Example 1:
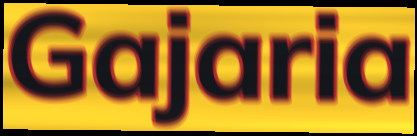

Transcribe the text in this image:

Gajaria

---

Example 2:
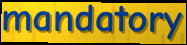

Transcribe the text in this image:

mandatory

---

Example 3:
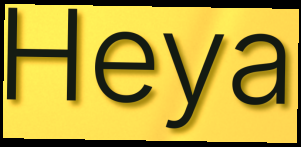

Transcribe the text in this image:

Heya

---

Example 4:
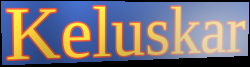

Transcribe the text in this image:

Keluskar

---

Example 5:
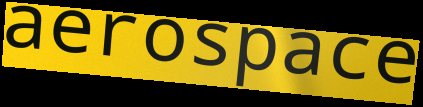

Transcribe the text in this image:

aerospace